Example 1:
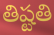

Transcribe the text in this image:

తిష్టతి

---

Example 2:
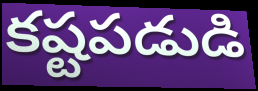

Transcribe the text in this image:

కష్టపడుడి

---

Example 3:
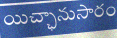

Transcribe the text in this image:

యిచ్ఛానుసారం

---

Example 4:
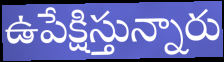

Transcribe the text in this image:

ఉపేక్షిస్తున్నారు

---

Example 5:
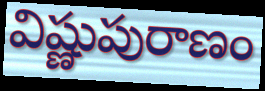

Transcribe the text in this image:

విష్ణుపురాణం